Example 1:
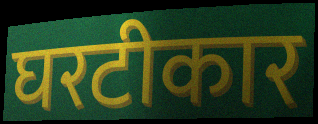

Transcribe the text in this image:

घरटीकार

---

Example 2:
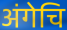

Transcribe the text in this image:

अंगेचि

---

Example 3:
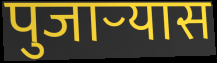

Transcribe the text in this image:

पुजाऱ्यास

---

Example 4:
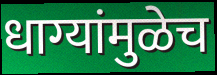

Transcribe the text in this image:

धाग्यांमुळेच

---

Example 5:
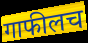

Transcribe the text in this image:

गाफीलच